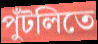
পুঁটলিতে